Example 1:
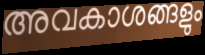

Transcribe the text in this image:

അവകാശങ്ങളും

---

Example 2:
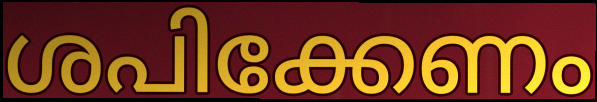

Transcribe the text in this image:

ശപിക്കേണം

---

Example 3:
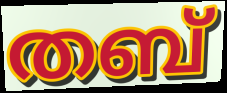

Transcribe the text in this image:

തബ്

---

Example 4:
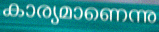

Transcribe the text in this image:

കാര്യമാണെന്നു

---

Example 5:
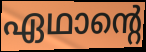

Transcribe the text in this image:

ഏഥാന്റെ